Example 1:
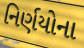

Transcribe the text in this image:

નિર્ણયોના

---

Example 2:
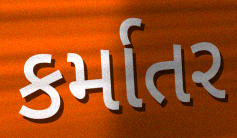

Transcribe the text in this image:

કર્માતર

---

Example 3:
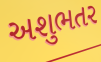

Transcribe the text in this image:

અશુભતર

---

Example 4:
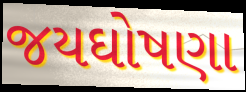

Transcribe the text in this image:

જયઘોષણા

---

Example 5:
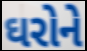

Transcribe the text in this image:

ઘરોને